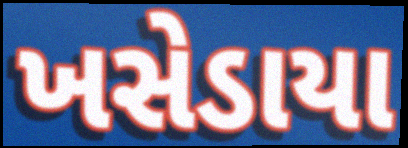
ખસેડાયા